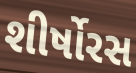
શીર્ષોરસ